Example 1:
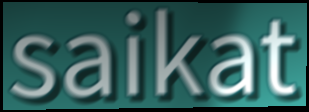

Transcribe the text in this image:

saikat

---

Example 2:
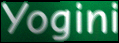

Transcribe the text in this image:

Yogini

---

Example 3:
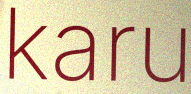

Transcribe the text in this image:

karu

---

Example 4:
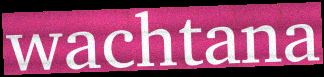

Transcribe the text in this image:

wachtana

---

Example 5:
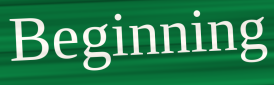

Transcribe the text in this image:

Beginning